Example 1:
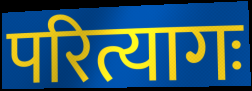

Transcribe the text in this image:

परित्यागः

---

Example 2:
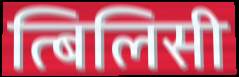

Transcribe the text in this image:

त्बिलिसी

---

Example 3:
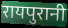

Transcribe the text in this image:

रायपुरानी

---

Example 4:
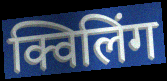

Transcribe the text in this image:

क्विलिंग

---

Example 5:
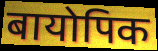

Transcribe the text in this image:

बायोपिक